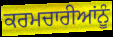
ਕਰਮਚਾਰੀਆਂਨੂੰ